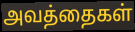
அவத்தைகள்